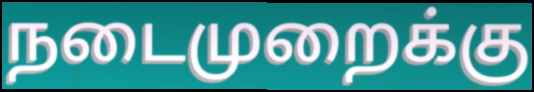
நடைமுறைக்கு